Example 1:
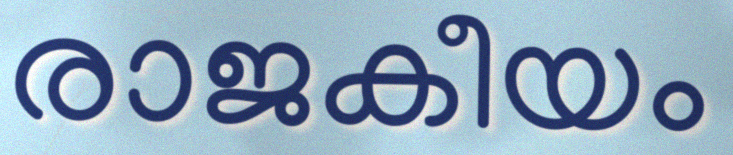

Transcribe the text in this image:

രാജകീയം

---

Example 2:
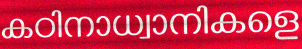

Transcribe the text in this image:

കഠിനാധ്വാനികളെ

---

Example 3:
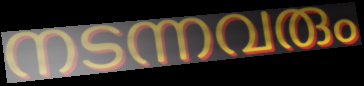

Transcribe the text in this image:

നടന്നവരും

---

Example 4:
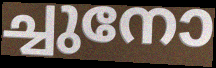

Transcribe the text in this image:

ച്ചുനോ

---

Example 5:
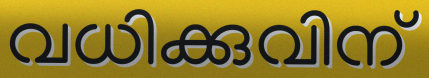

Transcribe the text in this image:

വധിക്കുവിന്